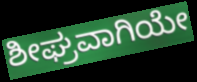
ಶೀಘ್ರವಾಗಿಯೇ